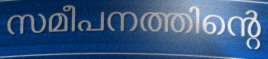
സമീപനത്തിന്റെ